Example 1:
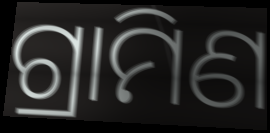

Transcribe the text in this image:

ଗ୍ରାମିଣ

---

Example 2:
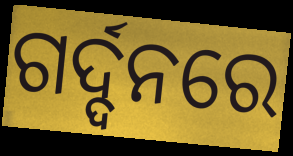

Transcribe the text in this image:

ଗର୍ଦ୍ଦନରେ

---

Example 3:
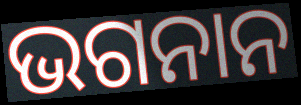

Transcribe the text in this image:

ଭଗନାନ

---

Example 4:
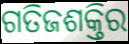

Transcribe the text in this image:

ଗତିଜଶକ୍ତିର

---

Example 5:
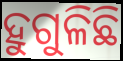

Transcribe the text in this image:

ହୁଗୁଳିଛି